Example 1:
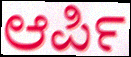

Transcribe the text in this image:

ಆರ್ಪಿ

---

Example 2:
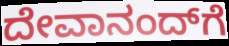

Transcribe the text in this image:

ದೇವಾನಂದ್‌ಗೆ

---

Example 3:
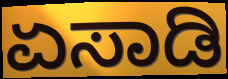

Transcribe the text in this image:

ಏಸಾಡಿ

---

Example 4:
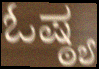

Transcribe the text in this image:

ಓಷ್ಠ್ಯ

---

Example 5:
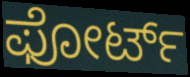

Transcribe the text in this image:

ಫೋರ್ಟ್